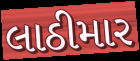
લાઠીમાર